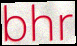
bhr